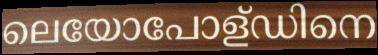
ലെയോപോള്ഡിനെ